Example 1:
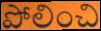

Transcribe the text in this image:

పోలించి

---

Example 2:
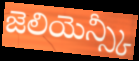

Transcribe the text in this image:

జెలియెన్స్కీ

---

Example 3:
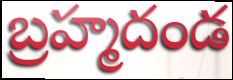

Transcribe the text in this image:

బ్రహ్మదండ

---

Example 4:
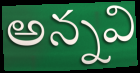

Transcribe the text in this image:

అన్నవి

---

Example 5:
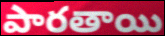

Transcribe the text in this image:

పారతాయి